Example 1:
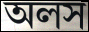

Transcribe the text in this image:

অলস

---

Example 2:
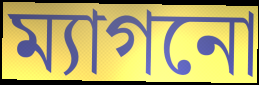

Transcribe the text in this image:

ম্যাগনো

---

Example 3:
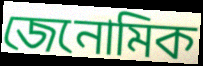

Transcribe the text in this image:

জেনোমিক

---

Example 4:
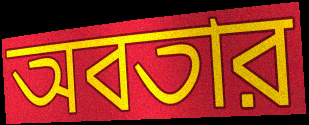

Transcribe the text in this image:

অবতার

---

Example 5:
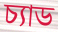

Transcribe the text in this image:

চ্যাড